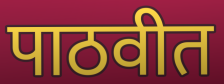
पाठवीत